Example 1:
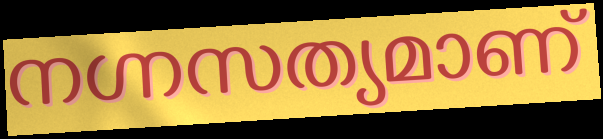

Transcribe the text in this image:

നഗ്നസത്യമാണ്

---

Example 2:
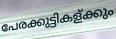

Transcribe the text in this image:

പേരക്കുട്ടികള്ക്കും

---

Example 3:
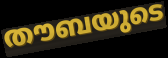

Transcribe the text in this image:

തൗബയുടെ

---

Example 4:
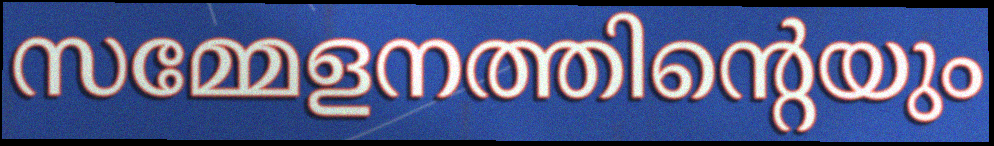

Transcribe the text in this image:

സമ്മേളനത്തിന്റെയും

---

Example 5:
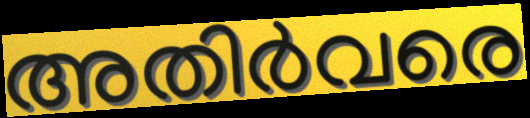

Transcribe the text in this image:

അതിർവരെ